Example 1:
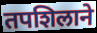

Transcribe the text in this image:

तपशिलाने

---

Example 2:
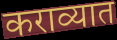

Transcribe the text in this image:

कराव्यात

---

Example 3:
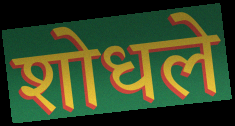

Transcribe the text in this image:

शोधले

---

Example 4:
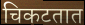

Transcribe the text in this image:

चिकटतात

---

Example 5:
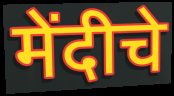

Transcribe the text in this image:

मेंदीचे